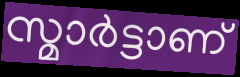
സ്മാർട്ടാണ്